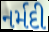
નર્મદી